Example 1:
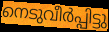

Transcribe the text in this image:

നെടുവീർപ്പിട്ടു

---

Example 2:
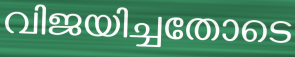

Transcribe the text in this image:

വിജയിച്ചതോടെ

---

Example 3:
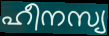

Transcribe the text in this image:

ഹീനസ്യ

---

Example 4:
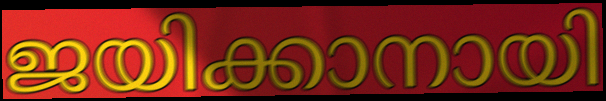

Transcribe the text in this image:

ജയിക്കാനായി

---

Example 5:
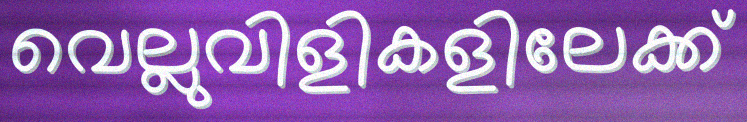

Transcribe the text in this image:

വെല്ലുവിളികളിലേക്ക്